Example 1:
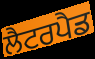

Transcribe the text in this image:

ਲੈਟਰਪੈਡ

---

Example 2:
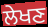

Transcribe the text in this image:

ਲੇਖਣ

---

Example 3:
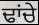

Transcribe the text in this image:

ਢਾਂਚੇ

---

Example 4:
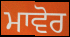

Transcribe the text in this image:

ਮਾਵੋਰ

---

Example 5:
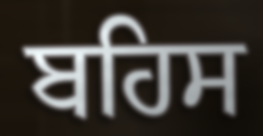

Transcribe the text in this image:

ਬਹਿਸ